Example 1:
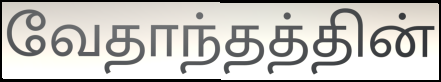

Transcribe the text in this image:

வேதாந்தத்தின்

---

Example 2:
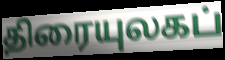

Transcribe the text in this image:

திரையுலகப்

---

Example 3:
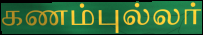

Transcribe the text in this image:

கணம்புல்லர்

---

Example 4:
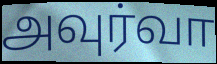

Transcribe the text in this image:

அவுர்வா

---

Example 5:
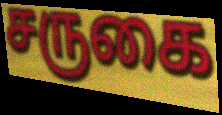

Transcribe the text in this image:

சருகை